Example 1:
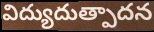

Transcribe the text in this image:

విద్యుదుత్పాదన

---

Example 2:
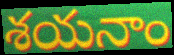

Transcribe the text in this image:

శయనాం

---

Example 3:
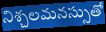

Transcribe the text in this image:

నిశ్చలమనస్సుతో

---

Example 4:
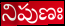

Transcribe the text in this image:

నిపుణః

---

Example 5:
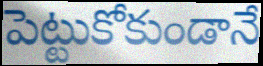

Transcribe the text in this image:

పెట్టుకోకుండానే